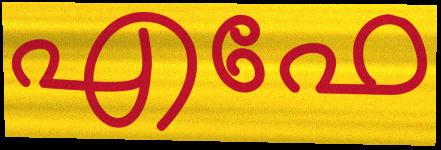
എഫേ